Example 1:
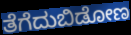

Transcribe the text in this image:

ತೆಗೆದುಬಿಡೋಣ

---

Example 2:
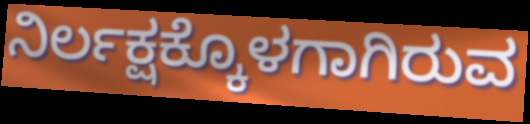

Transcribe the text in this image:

ನಿರ್ಲಕ್ಷಕ್ಕೊಳಗಾಗಿರುವ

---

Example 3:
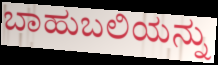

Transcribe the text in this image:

ಬಾಹುಬಲಿಯನ್ನು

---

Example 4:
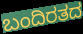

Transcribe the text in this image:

ಬಂದಿರತದ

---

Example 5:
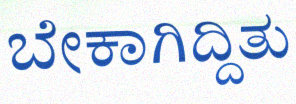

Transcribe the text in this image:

ಬೇಕಾಗಿದ್ದಿತು